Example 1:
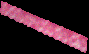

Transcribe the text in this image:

నరసనాయకుడు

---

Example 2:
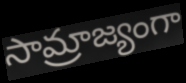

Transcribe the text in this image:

సామ్రాజ్యంగా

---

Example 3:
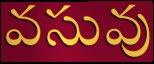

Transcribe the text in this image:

వసువు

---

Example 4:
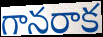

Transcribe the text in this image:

గానరాక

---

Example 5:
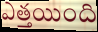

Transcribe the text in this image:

ఎత్తయింది